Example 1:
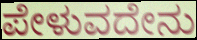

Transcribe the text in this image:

ಪೇಳುವದೇನು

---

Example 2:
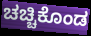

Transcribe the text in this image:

ಚಚ್ಚಿಕೊಂಡ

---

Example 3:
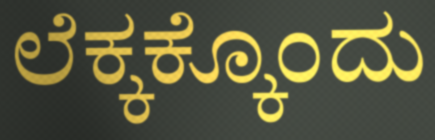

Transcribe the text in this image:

ಲೆಕ್ಕಕ್ಕೊಂದು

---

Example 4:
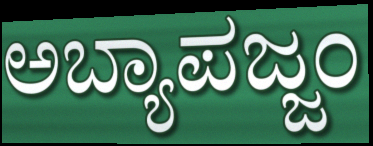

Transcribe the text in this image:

ಅಬ್ಯಾಪಜ್ಜಂ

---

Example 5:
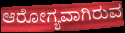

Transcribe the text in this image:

ಆರೋಗ್ಯವಾಗಿರುವ